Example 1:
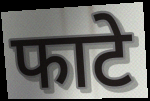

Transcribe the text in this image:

फाटे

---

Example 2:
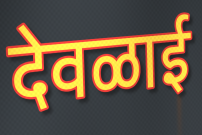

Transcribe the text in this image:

देवळाई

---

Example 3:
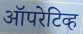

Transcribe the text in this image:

ऑपरेटिव्ह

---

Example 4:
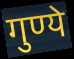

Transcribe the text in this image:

गुण्ये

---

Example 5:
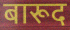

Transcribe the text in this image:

बारूद